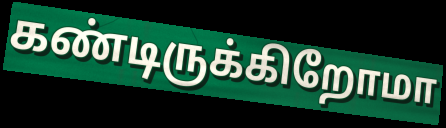
கண்டிருக்கிறோமா